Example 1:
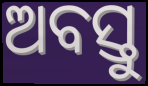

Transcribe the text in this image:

ଅବସ୍ତୁ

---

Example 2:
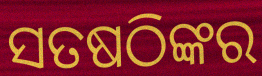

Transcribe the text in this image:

ସତଷଠିଙ୍କର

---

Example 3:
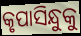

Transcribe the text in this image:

କୃପାସିନ୍ଧୁକୁ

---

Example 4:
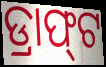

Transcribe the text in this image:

ଡ୍ରାଫ୍‍ଟ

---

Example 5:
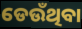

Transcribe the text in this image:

ଡେଉଁଥିବା